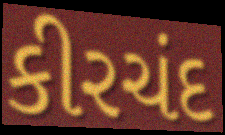
કીરચંદ